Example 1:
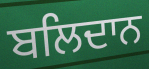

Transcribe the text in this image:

ਬਲਿਦਾਨ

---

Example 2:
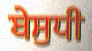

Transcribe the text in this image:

ਬੇਸੁਧੀ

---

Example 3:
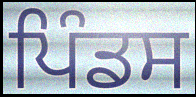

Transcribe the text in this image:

ਪਿੰਡਸ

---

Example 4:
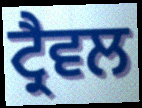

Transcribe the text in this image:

ਟ੍ਰੈਵਲ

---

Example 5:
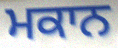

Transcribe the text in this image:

ਮਕਾਨ